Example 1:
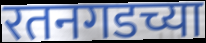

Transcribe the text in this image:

रतनगडच्या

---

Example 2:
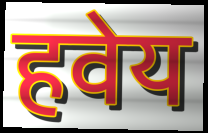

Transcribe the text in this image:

हवेय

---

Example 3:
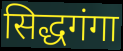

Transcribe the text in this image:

सिद्धगंगा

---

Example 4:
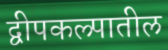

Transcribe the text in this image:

द्वीपकल्पातील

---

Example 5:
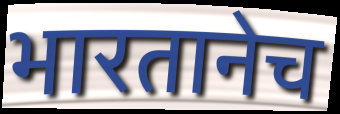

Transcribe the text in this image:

भारतानेच